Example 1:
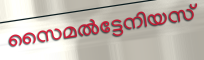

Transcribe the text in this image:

സൈമൽട്ടേനിയസ്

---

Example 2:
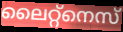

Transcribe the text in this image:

ലൈറ്റ്നെസ്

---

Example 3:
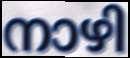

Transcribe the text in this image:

നാഴി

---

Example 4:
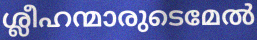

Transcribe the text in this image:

ശ്ലീഹന്മാരുടെമേൽ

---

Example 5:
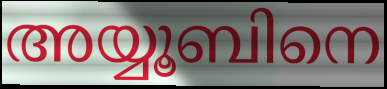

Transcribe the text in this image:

അയ്യൂബിനെ